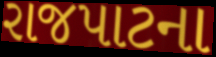
રાજપાટના